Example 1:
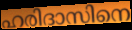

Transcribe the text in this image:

ഹരിദാസിനെ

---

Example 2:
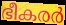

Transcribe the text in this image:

ഭീകരർ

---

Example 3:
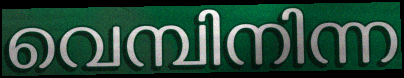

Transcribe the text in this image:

വെമ്പിനിന്ന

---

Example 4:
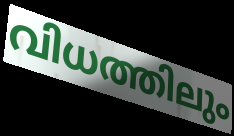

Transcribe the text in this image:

വിധത്തിലും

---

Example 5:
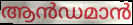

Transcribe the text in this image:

ആൻഡമാൻ